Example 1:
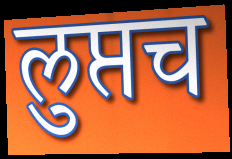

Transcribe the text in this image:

लुप्तच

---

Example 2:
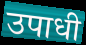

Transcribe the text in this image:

उपाधी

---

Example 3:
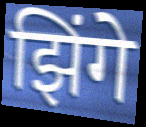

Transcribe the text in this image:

झिंगे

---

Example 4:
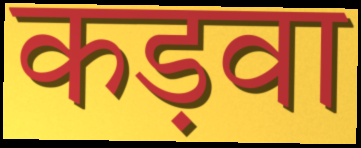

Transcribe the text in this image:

कड़वा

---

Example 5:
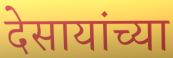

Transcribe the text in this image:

देसायांच्या